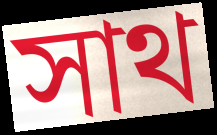
সাথ